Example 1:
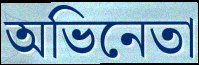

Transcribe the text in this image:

অভিনেতা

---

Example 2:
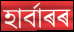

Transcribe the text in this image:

হাৰ্বাৰৰ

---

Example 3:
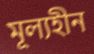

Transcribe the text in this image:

মূল্যহীন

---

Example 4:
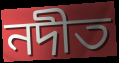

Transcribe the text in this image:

নদীত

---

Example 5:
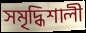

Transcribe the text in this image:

সমৃদ্ধিশালী